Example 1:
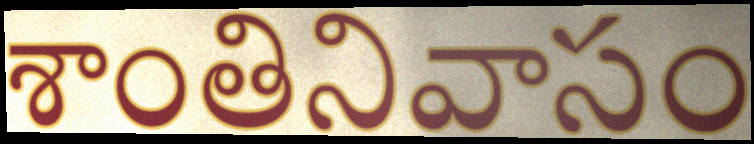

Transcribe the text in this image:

శాంతినివాసం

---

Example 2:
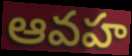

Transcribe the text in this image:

ఆవహ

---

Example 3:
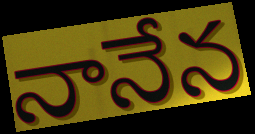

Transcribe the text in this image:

నానేన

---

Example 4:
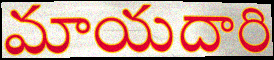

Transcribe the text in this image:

మాయదారి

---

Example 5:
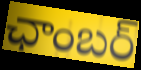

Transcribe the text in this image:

ఛాంబర్